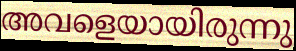
അവളെയായിരുന്നു